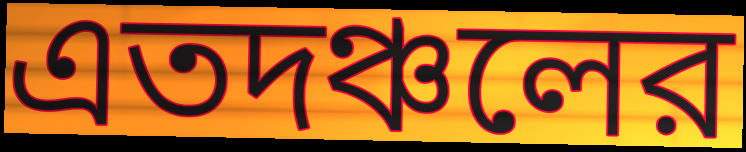
এতদঞ্চলের